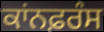
ਕਾਂਨਫ਼ਰੰਸ